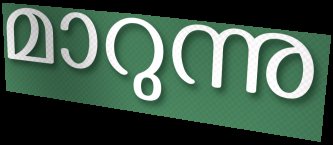
മാറുന്നു